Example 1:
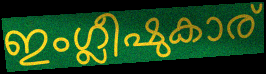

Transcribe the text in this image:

ഇംഗ്ലീഷുകാര്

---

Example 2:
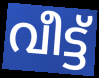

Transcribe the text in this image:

വീട്ട്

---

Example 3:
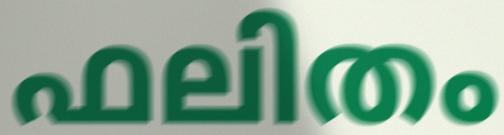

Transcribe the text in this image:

ഫലിതം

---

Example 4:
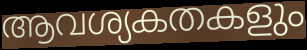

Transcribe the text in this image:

ആവശ്യകതകളും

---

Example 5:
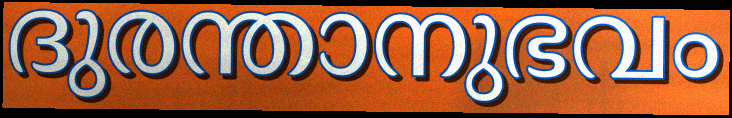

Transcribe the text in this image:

ദുരന്താനുഭവം